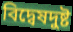
বিদ্বেষদুষ্ট